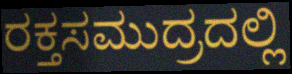
ರಕ್ತಸಮುದ್ರದಲ್ಲಿ